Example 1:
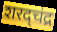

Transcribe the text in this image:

शरद्चंद्र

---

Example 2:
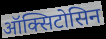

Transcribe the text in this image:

ऑक्सिटोसिन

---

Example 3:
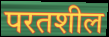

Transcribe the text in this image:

परतशील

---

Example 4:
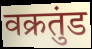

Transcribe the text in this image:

वक्रतुंड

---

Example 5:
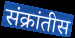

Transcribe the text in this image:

संक्रांतीस